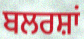
ਬਲਰਸ਼ਾਂ